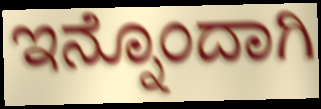
ಇನ್ನೊಂದಾಗಿ